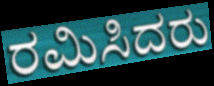
ರಮಿಸಿದರು